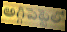
అగ్గిపెట్టెలో